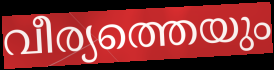
വീര്യത്തെയും